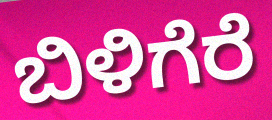
ಬಿಳಿಗೆರೆ